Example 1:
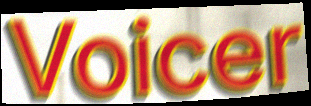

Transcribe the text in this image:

Voicer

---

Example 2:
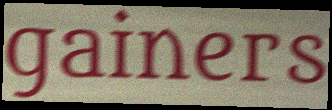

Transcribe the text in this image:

gainers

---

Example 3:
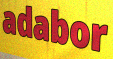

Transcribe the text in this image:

adabor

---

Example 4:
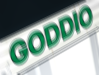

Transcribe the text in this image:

GODDIO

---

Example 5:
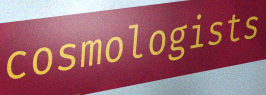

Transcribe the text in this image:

cosmologists